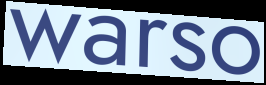
warso